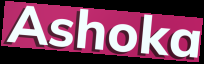
Ashoka